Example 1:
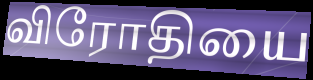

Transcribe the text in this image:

விரோதியை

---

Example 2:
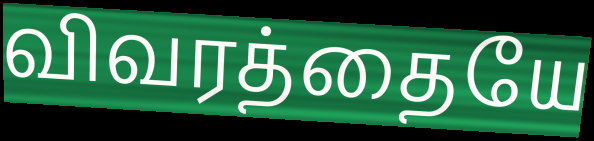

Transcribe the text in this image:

விவரத்தையே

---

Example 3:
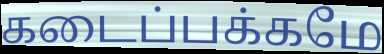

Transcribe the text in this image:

கடைப்பக்கமே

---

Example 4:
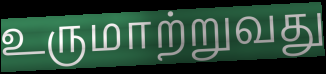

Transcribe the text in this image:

உருமாற்றுவது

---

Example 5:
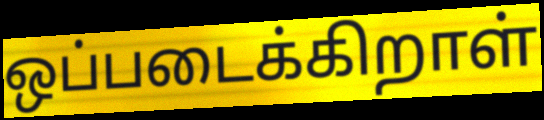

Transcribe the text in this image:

ஒப்படைக்கிறாள்